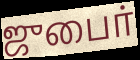
ஜுபைர்